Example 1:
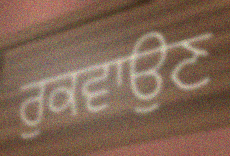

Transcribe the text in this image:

ਰੁਕਵਾਉਣ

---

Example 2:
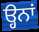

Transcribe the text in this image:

ੳ੍ਹਨਾਂ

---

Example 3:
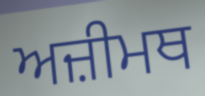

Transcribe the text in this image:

ਅਜ਼ੀਮਥ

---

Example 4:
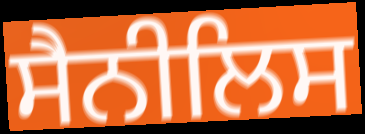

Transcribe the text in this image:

ਸੈਨੀਲਿਸ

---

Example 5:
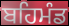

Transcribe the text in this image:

ਬਹਿਮੰਡ